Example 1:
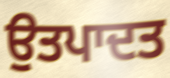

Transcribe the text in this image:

ਉਤਪਾਦਤ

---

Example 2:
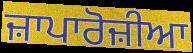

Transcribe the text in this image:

ਜ਼ਾਪਾਰੋਜ਼ੀਆ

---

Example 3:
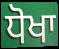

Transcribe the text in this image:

ਧੋਖਾ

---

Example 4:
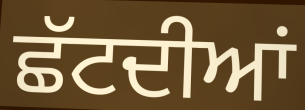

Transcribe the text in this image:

ਛੱਟਦੀਆਂ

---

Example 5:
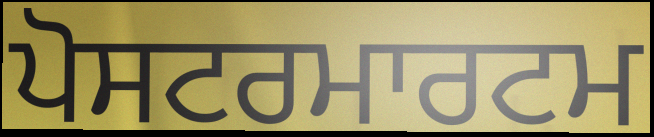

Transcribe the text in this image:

ਪੋਸਟਰਮਾਰਟਮ